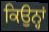
ਕਿਉਨ੍ਹਾਂ